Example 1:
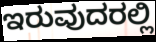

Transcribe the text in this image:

ಇರುವುದರಲ್ಲಿ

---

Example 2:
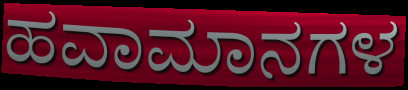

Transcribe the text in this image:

ಹವಾಮಾನಗಳ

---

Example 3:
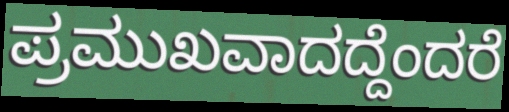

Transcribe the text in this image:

ಪ್ರಮುಖವಾದದ್ದೆಂದರೆ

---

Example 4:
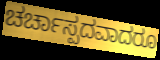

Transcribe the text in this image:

ಚರ್ಚಾಸ್ಪದವಾದರೂ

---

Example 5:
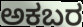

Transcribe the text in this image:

ಅಕಬರ